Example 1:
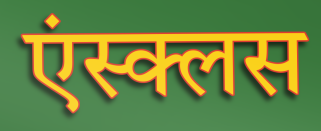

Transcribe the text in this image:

एंस्क्लस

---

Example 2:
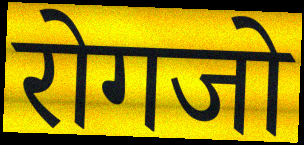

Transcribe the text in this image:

रोगजो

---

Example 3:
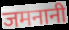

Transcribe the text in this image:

जमनानी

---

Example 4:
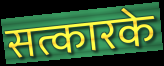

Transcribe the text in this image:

सत्कारके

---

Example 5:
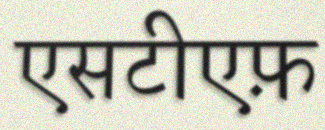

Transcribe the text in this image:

एसटीएफ़